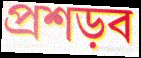
প্রশড়ব